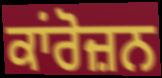
ਕਾਂਰੋਜ਼ਨ